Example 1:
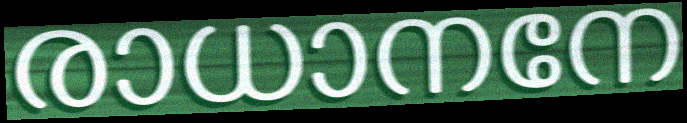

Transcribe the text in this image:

രാധാനനേ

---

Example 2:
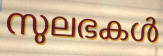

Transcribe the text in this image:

സുലഭകൾ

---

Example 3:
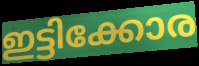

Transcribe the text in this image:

ഇട്ടിക്കോര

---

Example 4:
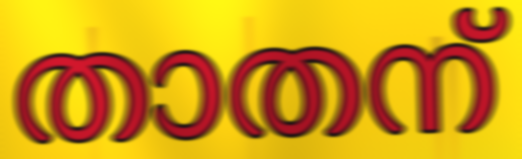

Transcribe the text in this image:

താതന്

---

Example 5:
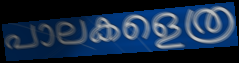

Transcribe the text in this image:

പാലകളെത്ര